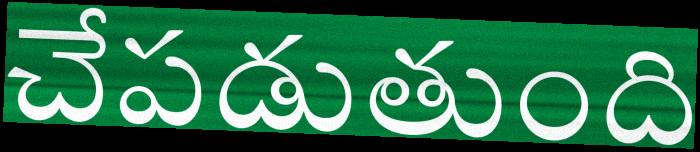
చేపడుతుంది